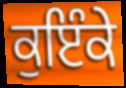
ਕੁਇੰਕੇ